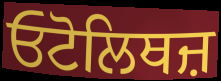
ਓਟੋਲਿਥਜ਼